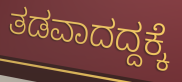
ತಡವಾದದ್ದಕ್ಕೆ